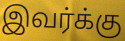
இவர்க்கு